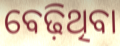
ବେଢ଼ିଥିବା